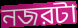
নজরটা